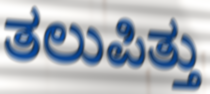
ತಲುಪಿತ್ತು